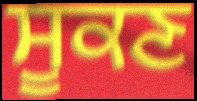
ਸੂਕਣ